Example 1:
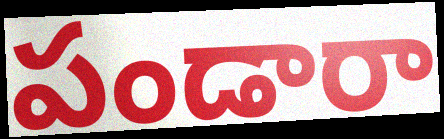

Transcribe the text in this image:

పండారా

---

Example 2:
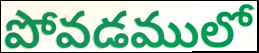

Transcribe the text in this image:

పోవడములో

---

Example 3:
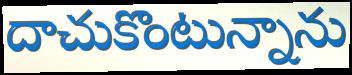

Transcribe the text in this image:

దాచుకొంటున్నాను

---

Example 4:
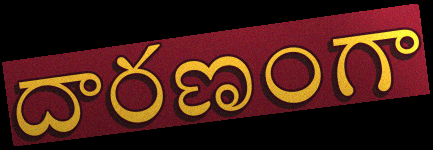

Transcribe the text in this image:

దారణంగా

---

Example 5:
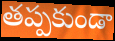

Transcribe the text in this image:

తప్పకుండా